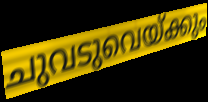
ചുവടുവെയ്ക്കും